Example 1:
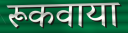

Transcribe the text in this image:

रूकवाया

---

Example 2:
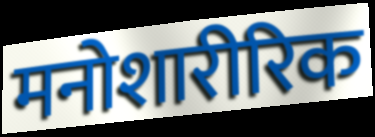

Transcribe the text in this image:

मनोशारीरिक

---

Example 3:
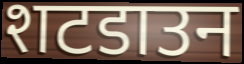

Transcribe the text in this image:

शटडाउन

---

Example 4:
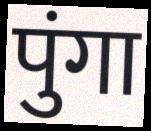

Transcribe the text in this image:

पुंगा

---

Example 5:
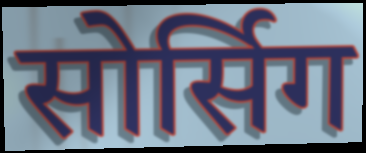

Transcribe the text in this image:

सोर्सिग